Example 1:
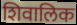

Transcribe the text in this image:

शिवालिक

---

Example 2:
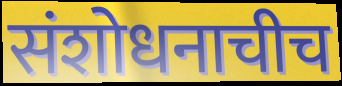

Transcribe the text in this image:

संशोधनाचीच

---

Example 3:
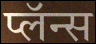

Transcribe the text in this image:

प्लॅन्स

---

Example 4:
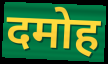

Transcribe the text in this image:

दमोह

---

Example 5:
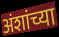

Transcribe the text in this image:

अंशांच्या